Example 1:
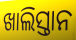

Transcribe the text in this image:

ଖାଲିସ୍ତାନ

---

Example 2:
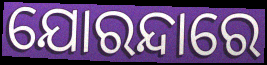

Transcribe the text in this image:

ଯୋରନ୍ଦାରେ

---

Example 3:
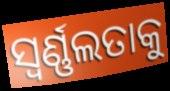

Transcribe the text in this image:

ସ୍ଵର୍ଣ୍ଣଲତାକୁ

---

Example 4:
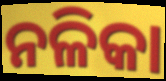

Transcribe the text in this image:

ନଳିକା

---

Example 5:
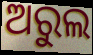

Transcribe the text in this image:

ଅରୁଲ